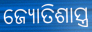
ଜ୍ୟୋତିଶାସ୍ତ୍ର